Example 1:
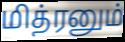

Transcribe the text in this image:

மித்ரனும்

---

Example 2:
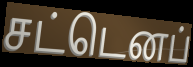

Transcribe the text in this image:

சட்டெனப்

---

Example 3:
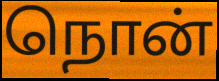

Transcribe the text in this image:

நொன்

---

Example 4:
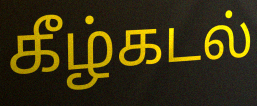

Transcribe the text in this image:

கீழ்கடல்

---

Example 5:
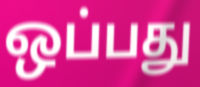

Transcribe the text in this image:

ஒப்பது